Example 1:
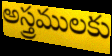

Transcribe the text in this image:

అస్త్రములకు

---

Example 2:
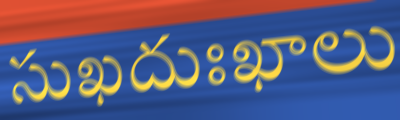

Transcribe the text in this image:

సుఖదుఃఖాలు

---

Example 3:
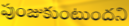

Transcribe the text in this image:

పుంజుకుంటుందని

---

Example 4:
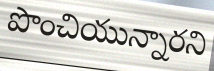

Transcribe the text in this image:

పొంచియున్నారని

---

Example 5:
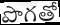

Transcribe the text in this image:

పొగతో